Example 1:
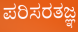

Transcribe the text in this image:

ಪರಿಸರತಜ್ಞ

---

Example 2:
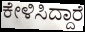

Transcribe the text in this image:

ಕೇಳಿಸಿದ್ದಾರೆ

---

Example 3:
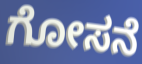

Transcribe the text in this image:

ಗೋಸನೆ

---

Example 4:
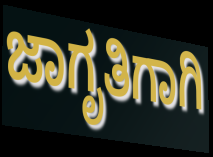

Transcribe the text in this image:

ಜಾಗೃತಿಗಾಗಿ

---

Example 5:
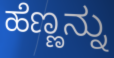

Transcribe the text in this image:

ಹೆಣ್ಣನ್ನು